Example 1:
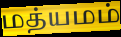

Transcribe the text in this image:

மத்யமம்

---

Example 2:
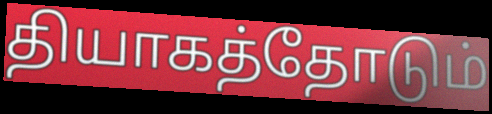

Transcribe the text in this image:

தியாகத்தோடும்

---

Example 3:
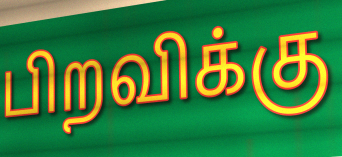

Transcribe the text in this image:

பிறவிக்கு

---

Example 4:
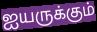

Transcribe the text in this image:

ஐயருக்கும்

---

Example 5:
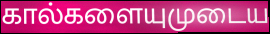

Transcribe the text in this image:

கால்களையுமுடைய